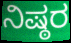
ನಿಷ್ಠರ